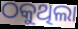
ଠକୁଥିଲା